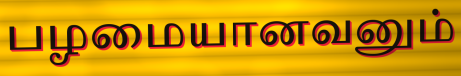
பழமையானவனும்